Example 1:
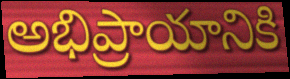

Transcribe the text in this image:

అభిప్రాయానికి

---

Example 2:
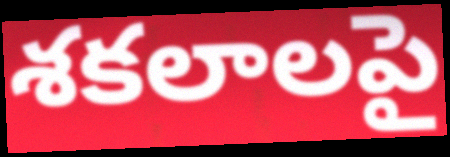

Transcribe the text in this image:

శకలాలపై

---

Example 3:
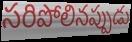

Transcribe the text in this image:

సరిపోలినప్పుడు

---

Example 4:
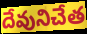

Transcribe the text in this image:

దేవునిచేత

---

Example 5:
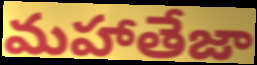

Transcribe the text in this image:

మహాతేజా